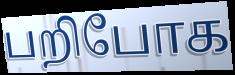
பறிபோக